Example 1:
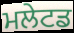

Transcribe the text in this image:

ਮਲੇਟਡ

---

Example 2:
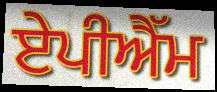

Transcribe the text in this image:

ਏਪੀਐੱਮ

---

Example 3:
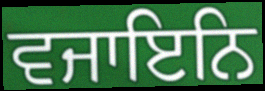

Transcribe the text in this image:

ਵਜਾਇਨਿ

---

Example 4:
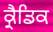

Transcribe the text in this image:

ਕ੍ਰੈਡਿਕ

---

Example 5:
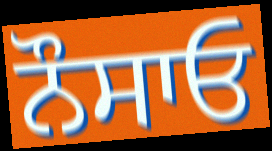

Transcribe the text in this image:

ਨੌਸਾਓ